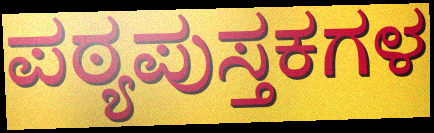
ಪಠ್ಯಪುಸ್ತಕಗಳ